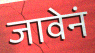
जावेनं